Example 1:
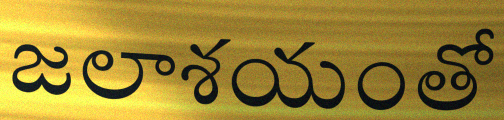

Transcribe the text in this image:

జలాశయంతో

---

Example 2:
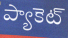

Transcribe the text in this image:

ప్యాకెట్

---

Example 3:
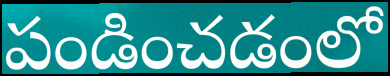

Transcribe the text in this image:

పండించడంలో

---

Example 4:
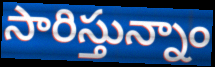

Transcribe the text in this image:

సారిస్తున్నాం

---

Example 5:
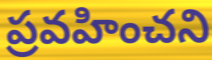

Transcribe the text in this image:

ప్రవహించని